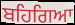
ਬਹਿਗਿਆ